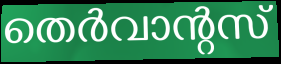
തെർവാന്റസ്